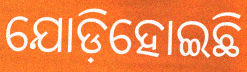
ଯୋଡ଼ିହୋଇଛି